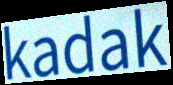
kadak